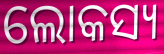
ଲୋକସ୍ୟ